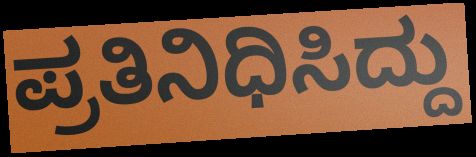
ಪ್ರತಿನಿಧಿಸಿದ್ದು